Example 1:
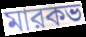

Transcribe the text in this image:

মারকভ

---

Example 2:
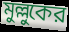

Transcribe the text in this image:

মুল্লুকের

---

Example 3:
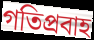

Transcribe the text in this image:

গতিপ্রবাহ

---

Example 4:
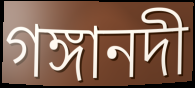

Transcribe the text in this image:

গঙ্গানদী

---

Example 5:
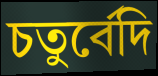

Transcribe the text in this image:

চতুর্বেদি